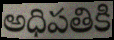
అధిపతికి